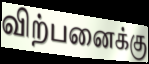
விற்பனைக்கு